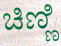
ಚಿಣ್ಣಿ